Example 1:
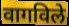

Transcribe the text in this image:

वागविले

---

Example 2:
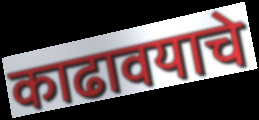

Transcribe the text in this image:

काढावयाचे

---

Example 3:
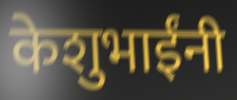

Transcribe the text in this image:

केशुभाईंनी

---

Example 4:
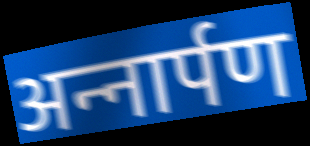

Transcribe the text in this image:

अन्नार्पण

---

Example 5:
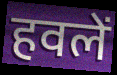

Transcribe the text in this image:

हवलें